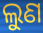
ଲୁଣ